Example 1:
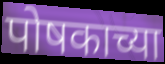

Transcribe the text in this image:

पोषकाच्या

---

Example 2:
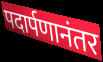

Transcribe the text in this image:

पदार्पणानंतर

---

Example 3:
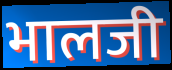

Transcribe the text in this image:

भालजी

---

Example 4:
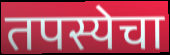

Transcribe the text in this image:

तपस्येचा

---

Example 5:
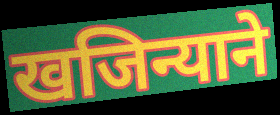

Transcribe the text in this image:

खजिन्याने